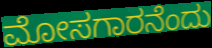
ಮೋಸಗಾರನೆಂದು